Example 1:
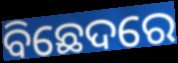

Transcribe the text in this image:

ବିଛେଦରେ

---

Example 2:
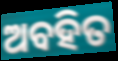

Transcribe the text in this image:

ଅବହିତ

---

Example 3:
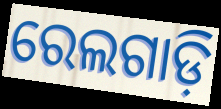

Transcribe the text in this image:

ରେଲଗାଡ଼ି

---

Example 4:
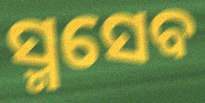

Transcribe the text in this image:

ସ୍ମସେବ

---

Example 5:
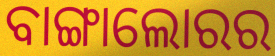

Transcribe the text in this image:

ବାଙ୍ଗାଲୋରର